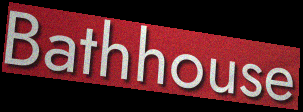
Bathhouse